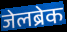
जेलब्रेक